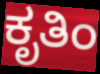
ಕೃತಿಂ